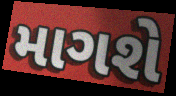
માગશે